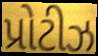
પ્રોટીઝ